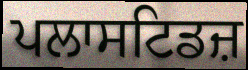
ਪਲਾਸਟਿਡਜ਼